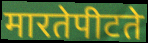
मारतेपीटते